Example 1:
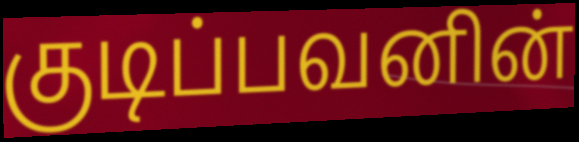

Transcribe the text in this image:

குடிப்பவனின்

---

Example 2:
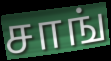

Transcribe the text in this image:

சாங்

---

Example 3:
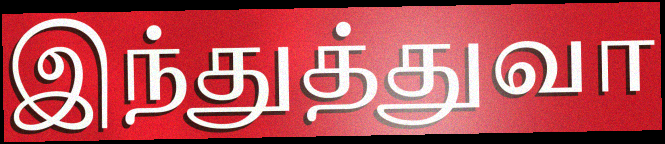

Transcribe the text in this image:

இந்துத்துவா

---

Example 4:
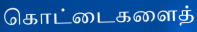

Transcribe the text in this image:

கொட்டைகளைத்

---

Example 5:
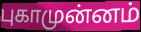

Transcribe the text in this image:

புகாமுன்னம்